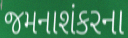
જમનાશંકરના